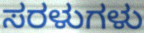
ಸರಳುಗಳು